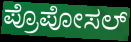
ಪ್ರೊಪೋಸಲ್